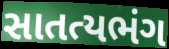
સાતત્યભંગ